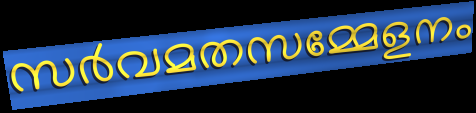
സർവമതസമ്മേളനം